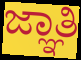
ಜ್ಞಾತಿ